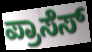
ಪ್ರಾಸೆಸ್